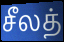
சீலத்